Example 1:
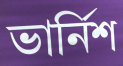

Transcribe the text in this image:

ভার্নিশ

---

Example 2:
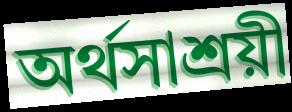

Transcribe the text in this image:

অর্থসাশ্রয়ী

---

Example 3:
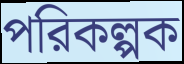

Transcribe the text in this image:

পরিকল্পক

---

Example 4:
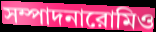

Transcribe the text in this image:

সম্পাদনারোমিও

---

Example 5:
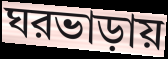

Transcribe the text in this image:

ঘরভাড়ায়